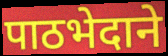
पाठभेदाने